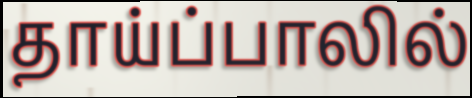
தாய்ப்பாலில்